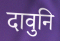
दावुनि